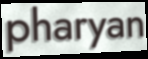
pharyan